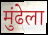
मुंढेला